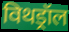
विथड्रॉल